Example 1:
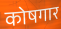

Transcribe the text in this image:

कोषगार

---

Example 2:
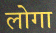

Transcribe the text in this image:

लोगा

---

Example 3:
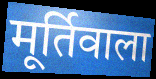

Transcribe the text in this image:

मूर्तिवाला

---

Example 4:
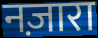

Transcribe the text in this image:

नज़ारा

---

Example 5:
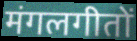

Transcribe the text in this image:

मंगलगीतों